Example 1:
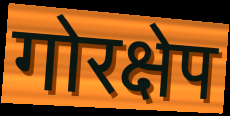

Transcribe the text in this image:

गोरक्षेप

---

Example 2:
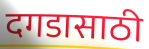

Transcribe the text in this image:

दगडासाठी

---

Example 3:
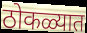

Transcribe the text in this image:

ठोकळ्यात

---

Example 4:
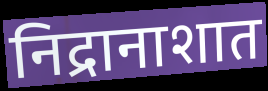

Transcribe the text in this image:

निद्रानाशात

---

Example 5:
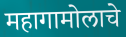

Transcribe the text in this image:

महागामोलाचे